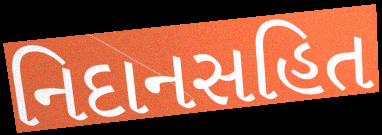
નિદાનસહિત